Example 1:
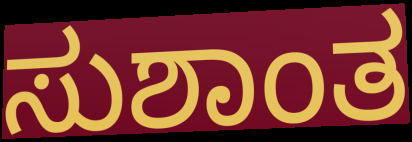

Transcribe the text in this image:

ಸುಶಾಂತ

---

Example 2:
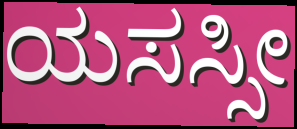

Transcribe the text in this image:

ಯಸಸ್ಸೀ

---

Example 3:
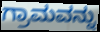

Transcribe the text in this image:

ಗ್ರಾಮವನ್ನು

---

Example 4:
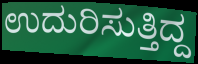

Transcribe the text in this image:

ಉದುರಿಸುತ್ತಿದ್ದ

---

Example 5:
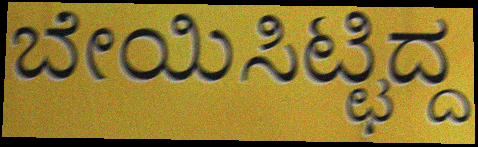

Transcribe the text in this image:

ಬೇಯಿಸಿಟ್ಟಿದ್ದ